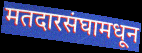
मतदारसंघामधून